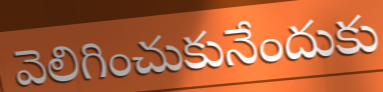
వెలిగించుకునేందుకు